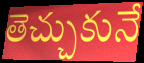
తెచ్చుకునే